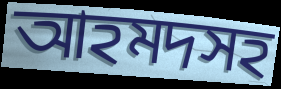
আহমদসহ